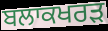
ਬਲਾਕਖਰੜ